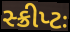
સ્ક્રીપ્ટઃ